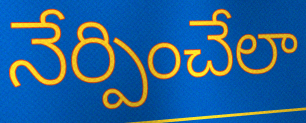
నేర్పించేలా